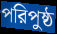
পরিপুষ্ঠ